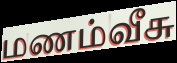
மணம்வீசு